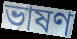
ভাষণ